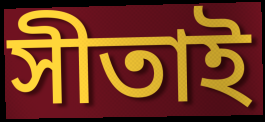
সীতাই